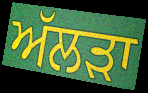
ਅੱਲੜਾ